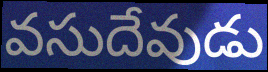
వసుదేవుడు